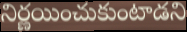
నిర్ణయించుకుంటాడని